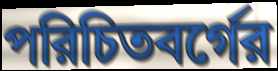
পরিচিতবর্গের